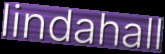
lindahall